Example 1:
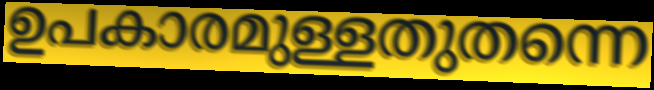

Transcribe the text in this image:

ഉപകാരമുള്ളതുതന്നെ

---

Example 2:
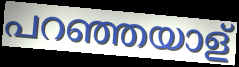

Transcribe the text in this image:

പറഞ്ഞയാള്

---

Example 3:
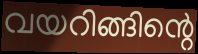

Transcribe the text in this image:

വയറിങ്ങിന്റെ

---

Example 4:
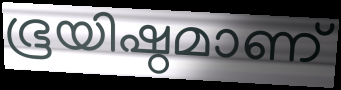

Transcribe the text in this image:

ഭൂയിഷ്ഠമാണ്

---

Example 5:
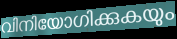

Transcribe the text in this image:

വിനിയോഗിക്കുകയും